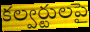
కల్వర్టులపై